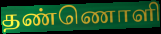
தண்ணொளி